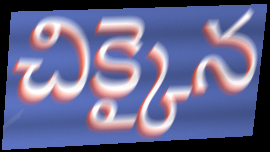
చిక్కైన